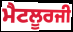
ਮੈਟਲੂਰਜੀ